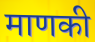
माणकी